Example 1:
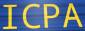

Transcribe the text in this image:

ICPA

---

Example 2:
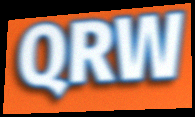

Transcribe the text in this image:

QRW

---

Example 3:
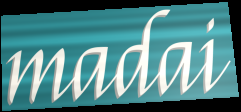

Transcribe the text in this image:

madai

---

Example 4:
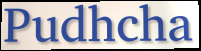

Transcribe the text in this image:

Pudhcha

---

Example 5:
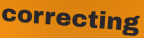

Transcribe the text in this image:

correcting